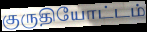
குருதியோட்டம்